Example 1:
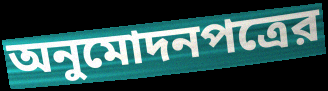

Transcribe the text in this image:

অনুমোদনপত্রের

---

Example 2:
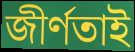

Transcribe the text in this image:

জীর্ণতাই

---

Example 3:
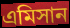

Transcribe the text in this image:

এমিসান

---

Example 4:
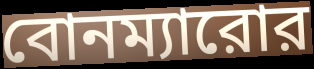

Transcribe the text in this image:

বোনম্যারোর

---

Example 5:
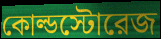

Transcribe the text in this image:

কোল্ডস্টোরেজ